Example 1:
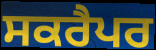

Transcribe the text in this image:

ਸਕਰੈਪਰ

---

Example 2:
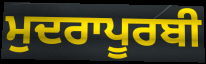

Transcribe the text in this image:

ਮੁਦਰਾਪੂਰਬੀ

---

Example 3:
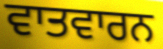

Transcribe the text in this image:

ਵਾਤਵਾਰਨ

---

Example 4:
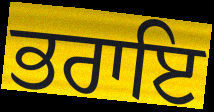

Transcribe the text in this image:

ਭਰਾਇ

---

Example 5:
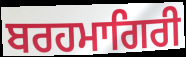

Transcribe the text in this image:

ਬਰਹਮਾਗਿਰੀ